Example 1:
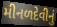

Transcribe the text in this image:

મીનળદેવીનું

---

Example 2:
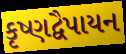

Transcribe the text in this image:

કૃષ્ણદ્વૈપાયન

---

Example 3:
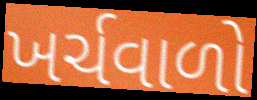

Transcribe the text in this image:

ખર્ચવાળો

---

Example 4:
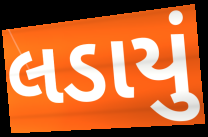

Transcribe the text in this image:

લડાયું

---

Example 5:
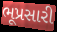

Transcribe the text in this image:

ભૂપ્રસારી